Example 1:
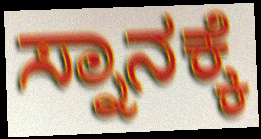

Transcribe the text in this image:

ಸ್ನಾನಕ್ಕೆ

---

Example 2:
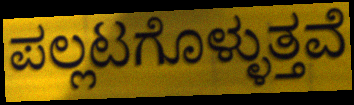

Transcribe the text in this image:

ಪಲ್ಲಟಗೊಳ್ಳುತ್ತವೆ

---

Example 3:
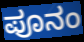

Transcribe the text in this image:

ಪೂನಂ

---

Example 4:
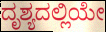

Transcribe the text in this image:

ದೃಶ್ಯದಲ್ಲಿಯೇ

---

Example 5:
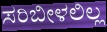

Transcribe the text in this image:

ಸರಿಬೀಳಲಿಲ್ಲ